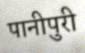
पानीपुरी